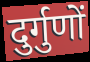
दुर्गुणों